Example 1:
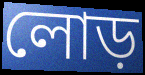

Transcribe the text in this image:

লোড়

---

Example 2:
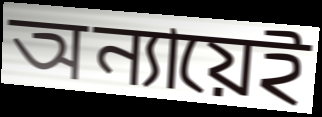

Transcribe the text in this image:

অন্যায়েই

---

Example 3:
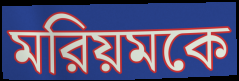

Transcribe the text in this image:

মরিয়মকে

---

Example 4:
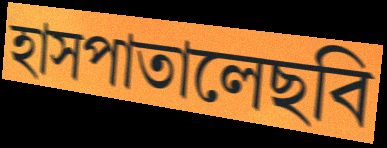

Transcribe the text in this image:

হাসপাতালেছবি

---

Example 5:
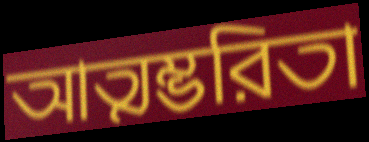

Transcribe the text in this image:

আত্মম্ভরিতা